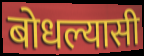
बोधल्यासी